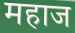
महाज